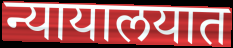
न्यायालयात